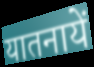
यातनायें